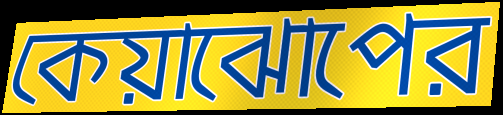
কেয়াঝোপের